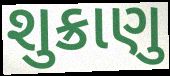
શુક્રાણુ